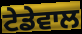
ਟੇਡੇਵਾਲ